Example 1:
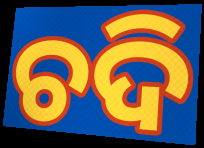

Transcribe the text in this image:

ଚଦି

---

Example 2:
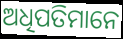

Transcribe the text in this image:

ଅଧିପତିମାନେ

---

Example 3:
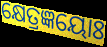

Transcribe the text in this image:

କ୍ଷେତ୍ରଜ୍ଞୟୋଃ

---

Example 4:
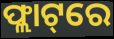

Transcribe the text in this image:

ଫ୍ଲାଟ୍‌ରେ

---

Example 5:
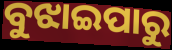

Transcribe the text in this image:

ବୁଝାଇପାରୁ